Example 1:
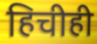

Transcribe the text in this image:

हिचीही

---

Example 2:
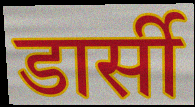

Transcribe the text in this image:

डार्सी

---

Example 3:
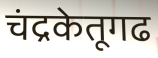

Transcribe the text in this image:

चंद्रकेतूगढ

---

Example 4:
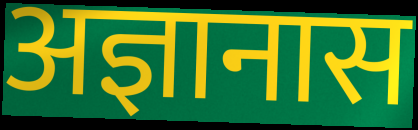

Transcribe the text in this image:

अज्ञानास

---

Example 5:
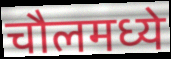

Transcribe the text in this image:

चौलमध्ये